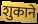
शुकाने